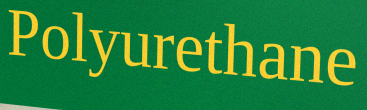
Polyurethane